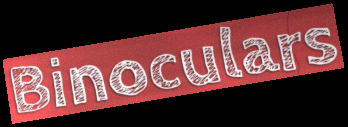
Binoculars